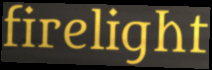
firelight